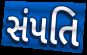
સંપતિ